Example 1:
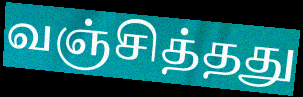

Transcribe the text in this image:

வஞ்சித்தது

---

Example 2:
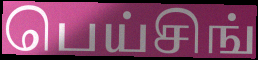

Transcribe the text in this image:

பெய்சிங்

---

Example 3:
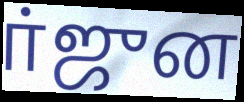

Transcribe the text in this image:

ர்ஜுன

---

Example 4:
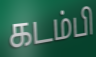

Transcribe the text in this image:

கடம்பி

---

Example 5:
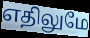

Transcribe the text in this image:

எதிலுமே